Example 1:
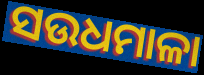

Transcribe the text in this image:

ସଉଧମାଳା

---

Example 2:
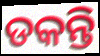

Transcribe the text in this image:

ଡକନ୍ତି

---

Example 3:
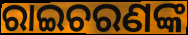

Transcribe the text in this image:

ରାଇଚରଣଙ୍କ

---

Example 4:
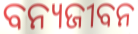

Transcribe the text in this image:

ବନ୍ୟଜୀବନ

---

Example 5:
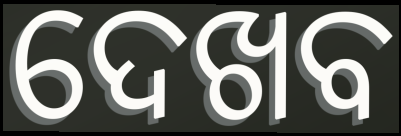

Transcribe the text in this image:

ଦେଖବ